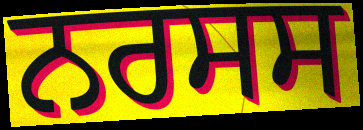
ਨਰਸਸ